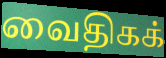
வைதிகக்